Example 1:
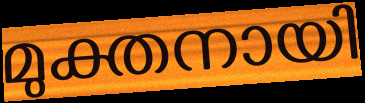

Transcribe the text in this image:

മുക്തനായി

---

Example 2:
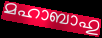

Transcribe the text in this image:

മഹാബാഹു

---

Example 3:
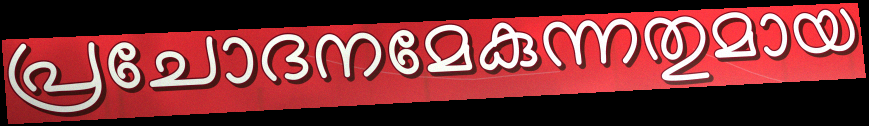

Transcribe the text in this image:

പ്രചോദനമേകുന്നതുമായ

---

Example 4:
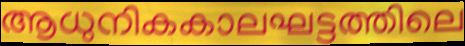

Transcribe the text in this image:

ആധുനികകാലഘട്ടത്തിലെ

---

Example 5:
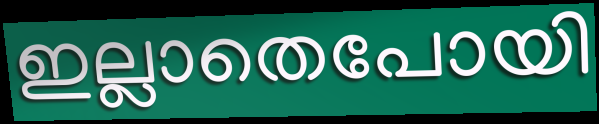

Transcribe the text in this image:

ഇല്ലാതെപോയി